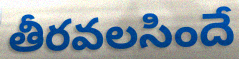
తీరవలసిందే